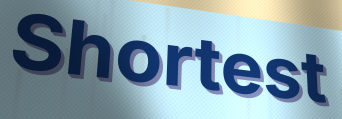
Shortest